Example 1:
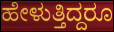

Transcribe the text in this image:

ಹೇಳುತ್ತಿದ್ದರೂ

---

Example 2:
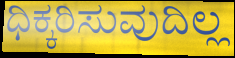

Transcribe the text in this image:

ಧಿಕ್ಕರಿಸುವುದಿಲ್ಲ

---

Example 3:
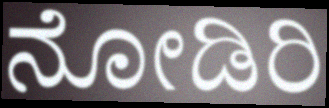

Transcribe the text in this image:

ನೋಡಿರಿ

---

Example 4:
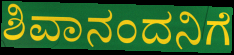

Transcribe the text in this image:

ಶಿವಾನಂದನಿಗೆ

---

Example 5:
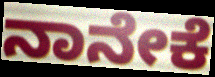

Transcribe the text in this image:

ನಾನೇಕೆ